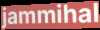
jammihal